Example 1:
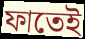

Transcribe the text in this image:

ফাতেই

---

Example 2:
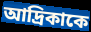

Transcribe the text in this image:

আদ্রিকাকে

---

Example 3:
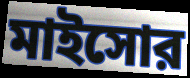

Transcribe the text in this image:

মাইসোর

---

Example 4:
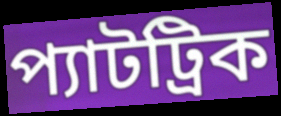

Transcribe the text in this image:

প্যাটট্রিক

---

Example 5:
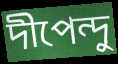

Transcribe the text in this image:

দীপেন্দু